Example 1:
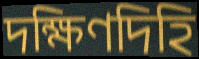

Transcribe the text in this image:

দক্ষিণদিহি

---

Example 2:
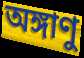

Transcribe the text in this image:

অঙ্গাণু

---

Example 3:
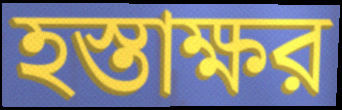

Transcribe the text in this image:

হস্তাক্ষর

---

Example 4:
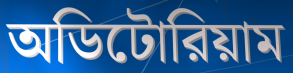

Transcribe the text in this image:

অডিটোরিয়াম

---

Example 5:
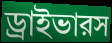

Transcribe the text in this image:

ড্রাইভারস